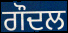
ਗੌਦਲ